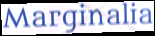
Marginalia